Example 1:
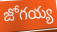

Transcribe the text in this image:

జోగయ్య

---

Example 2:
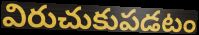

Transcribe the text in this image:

విరుచుకుపడటం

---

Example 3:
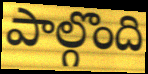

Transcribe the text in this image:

పాల్గొంది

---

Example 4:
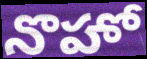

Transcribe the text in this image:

నొహో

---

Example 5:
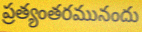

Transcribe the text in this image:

ప్రత్యంతరమునందు